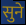
सुने